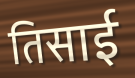
तिसाई